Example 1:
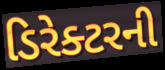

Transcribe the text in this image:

ડિરેક્ટરની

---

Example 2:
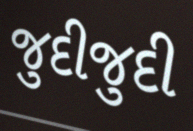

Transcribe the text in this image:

જુદીજુદી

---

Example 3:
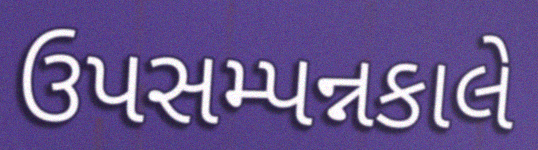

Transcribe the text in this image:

ઉપસમ્પન્નકાલે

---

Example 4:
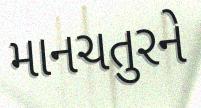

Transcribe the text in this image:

માનચતુરને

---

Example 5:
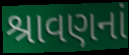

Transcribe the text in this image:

શ્રાવણનાં